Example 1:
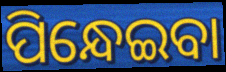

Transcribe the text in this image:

ପିନ୍ଧେଇବା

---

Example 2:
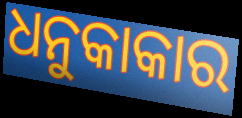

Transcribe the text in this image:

ଧନୁକାକାର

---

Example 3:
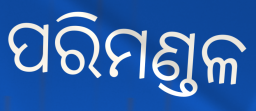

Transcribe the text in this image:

ପରିମଣ୍ଡଳ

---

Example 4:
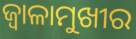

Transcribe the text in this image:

ଜ୍ୱାଳାମୁଖୀର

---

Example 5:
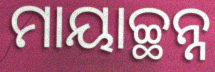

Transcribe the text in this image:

ମାୟାଚ୍ଛନ୍ନ